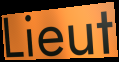
Lieut